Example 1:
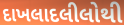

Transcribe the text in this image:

દાખલાદલીલોથી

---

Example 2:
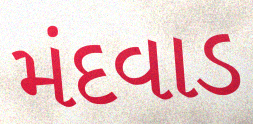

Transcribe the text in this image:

મંદવાડ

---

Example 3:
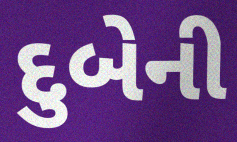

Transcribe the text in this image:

દુબેની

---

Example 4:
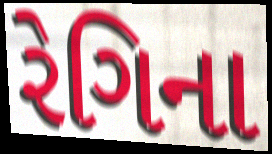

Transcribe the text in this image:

રેગિના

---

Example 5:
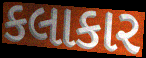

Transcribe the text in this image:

કલાકાર